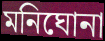
মনিঘোনা